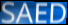
SAED